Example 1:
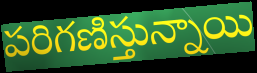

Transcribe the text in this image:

పరిగణిస్తున్నాయి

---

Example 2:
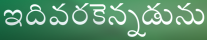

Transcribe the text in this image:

ఇదివరకెన్నడును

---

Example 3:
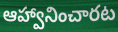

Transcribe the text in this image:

ఆహ్వానించారట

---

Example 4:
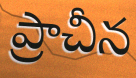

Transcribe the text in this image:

ప్రాచీన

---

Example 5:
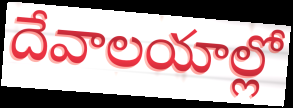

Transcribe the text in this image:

దేవాలయాల్లో